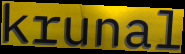
krunal